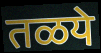
तळये